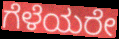
ಗೆಳೆಯರೇ